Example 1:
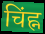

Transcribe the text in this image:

चिंह्न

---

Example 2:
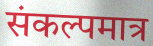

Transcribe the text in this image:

संकल्पमात्र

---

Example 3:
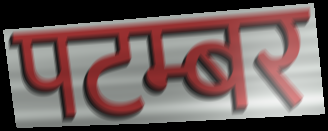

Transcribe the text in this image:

पटम्बर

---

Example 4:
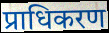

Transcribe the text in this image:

प्राधिकरण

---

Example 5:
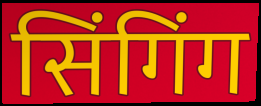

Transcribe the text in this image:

सिंगिंग